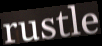
rustle